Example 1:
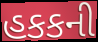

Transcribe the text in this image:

હકકની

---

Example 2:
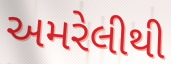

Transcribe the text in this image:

અમરેલીથી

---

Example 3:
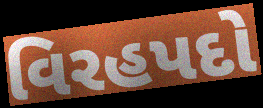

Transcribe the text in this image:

વિરહપદો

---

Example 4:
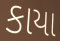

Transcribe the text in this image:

કાયા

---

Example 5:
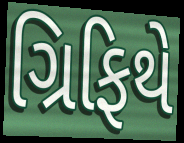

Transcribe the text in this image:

ગ્રિફિથે